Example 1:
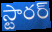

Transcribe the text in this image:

స్టారర్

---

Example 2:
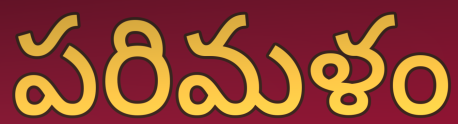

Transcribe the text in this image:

పరిమళం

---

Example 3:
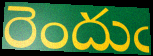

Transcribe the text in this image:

రెందుఁ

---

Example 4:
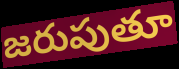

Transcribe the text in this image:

జరుపుతూ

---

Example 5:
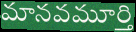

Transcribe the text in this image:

మానవమూర్తి